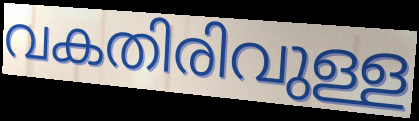
വകതിരിവുള്ള